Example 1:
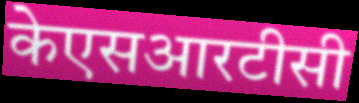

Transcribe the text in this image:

केएसआरटीसी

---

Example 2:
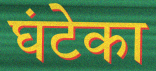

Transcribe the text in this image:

घंटेका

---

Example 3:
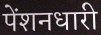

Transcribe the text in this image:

पेंशनधारी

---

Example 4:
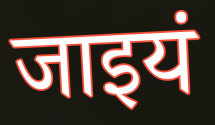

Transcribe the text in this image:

जाइयं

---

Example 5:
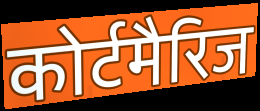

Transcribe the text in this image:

कोर्टमैरिज